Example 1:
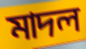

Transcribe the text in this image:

মাদল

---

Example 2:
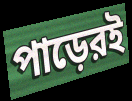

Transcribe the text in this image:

পাড়েরই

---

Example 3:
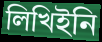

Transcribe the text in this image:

লিখিইনি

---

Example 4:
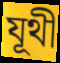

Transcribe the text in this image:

যূথী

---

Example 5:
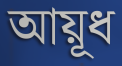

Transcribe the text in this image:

আয়ূধ